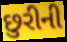
છુરીની